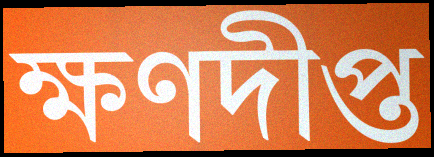
ক্ষণদীপ্ত